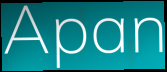
Apan